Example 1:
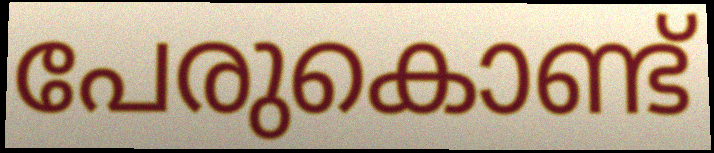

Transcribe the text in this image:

പേരുകൊണ്ട്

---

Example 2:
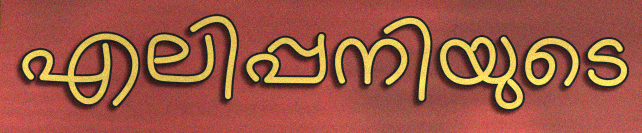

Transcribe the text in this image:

എലിപ്പനിയുടെ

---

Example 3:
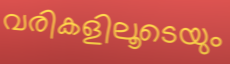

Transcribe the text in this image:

വരികളിലൂടെയും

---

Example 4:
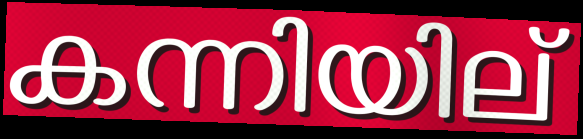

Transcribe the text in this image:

കന്നിയില്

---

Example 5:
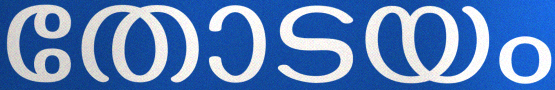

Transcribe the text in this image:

തോടയം